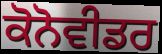
ਕੋਨੋਵੀਡਰ